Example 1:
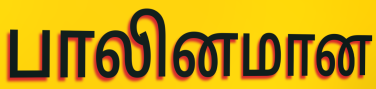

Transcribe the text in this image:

பாலினமான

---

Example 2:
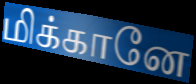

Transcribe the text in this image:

மிக்கானே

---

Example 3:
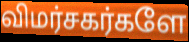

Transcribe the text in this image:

விமர்சகர்களே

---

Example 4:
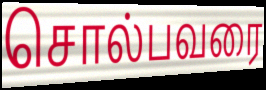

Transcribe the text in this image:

சொல்பவரை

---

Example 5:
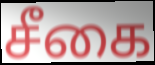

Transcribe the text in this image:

சீகை